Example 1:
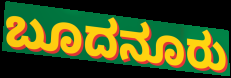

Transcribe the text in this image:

ಬೂದನೂರು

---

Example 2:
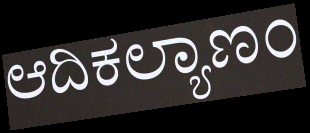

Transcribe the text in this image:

ಆದಿಕಲ್ಯಾಣಂ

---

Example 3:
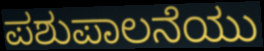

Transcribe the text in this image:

ಪಶುಪಾಲನೆಯು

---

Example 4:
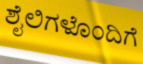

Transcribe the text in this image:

ಶೈಲಿಗಳೊಂದಿಗೆ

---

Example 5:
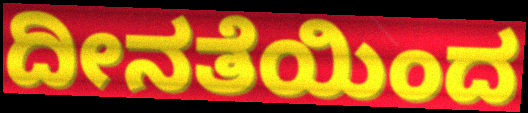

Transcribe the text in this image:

ದೀನತೆಯಿಂದ